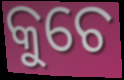
କୁଚେ